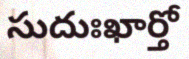
సుదుఃఖార్తో